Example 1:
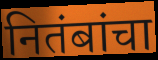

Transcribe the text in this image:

नितंबांचा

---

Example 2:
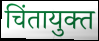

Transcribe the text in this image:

चिंतायुक्त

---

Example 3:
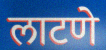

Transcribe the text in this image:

लाटणे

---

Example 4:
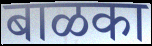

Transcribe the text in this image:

बाळका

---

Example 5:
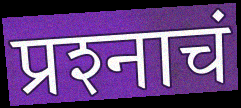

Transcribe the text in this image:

प्रश्नाचं